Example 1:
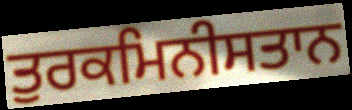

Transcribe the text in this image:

ਤੁਰਕਮਿਨੀਸਤਾਨ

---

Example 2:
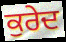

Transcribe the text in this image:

ਕੁਰੇਦ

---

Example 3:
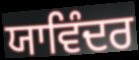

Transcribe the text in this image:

ਯਾਵਿੰਦਰ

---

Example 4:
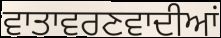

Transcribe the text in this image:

ਵਾਤਾਵਰਣਵਾਦੀਆਂ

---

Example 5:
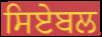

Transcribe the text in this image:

ਸਿਏਬਲ